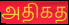
அதிகத